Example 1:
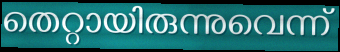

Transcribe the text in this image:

തെറ്റായിരുന്നുവെന്ന്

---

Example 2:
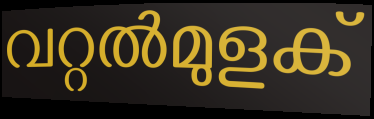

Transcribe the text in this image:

വറ്റൽമുളക്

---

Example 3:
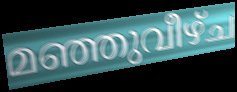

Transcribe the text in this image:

മഞ്ഞുവീഴ്ച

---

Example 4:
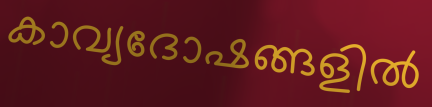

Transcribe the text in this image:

കാവ്യദോഷങ്ങളിൽ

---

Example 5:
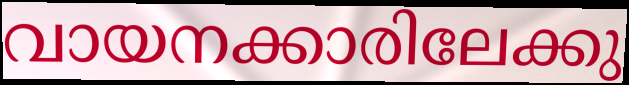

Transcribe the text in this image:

വായനക്കാരിലേക്കു